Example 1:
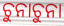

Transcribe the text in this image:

ଚୁନାଚୁନା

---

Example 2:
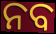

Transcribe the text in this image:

ନବ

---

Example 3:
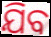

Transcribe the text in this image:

ଯିବ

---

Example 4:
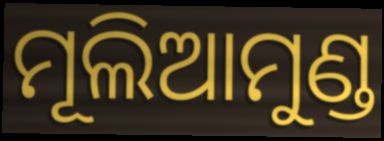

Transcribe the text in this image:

ମୂଲିଆମୁଣ୍ଡ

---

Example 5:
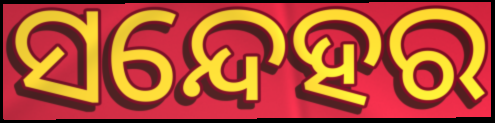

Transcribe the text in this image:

ସନ୍ଦେହର